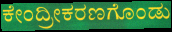
ಕೇಂದ್ರೀಕರಣಗೊಂಡು